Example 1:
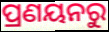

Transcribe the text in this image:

ପ୍ରଣୟନରୁ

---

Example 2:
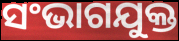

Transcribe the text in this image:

ସଂଭାଗଯୁକ୍ତ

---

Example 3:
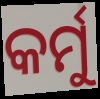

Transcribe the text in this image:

କର୍ମୁ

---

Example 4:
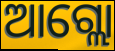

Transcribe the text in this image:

ଆଗ୍ଲୋ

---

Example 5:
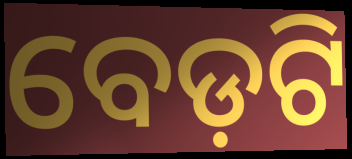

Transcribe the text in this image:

ବେଡ଼ଟି